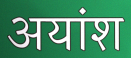
अयांश